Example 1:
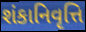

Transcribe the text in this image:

શંકાનિવૃત્તિ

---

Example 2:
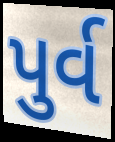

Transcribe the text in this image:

પુર્વ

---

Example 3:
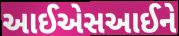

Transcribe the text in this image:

આઈએસઆઈને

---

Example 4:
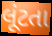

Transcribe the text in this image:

લૂંટતા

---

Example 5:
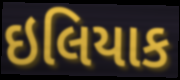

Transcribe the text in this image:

ઇલિયાક